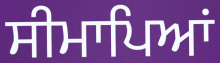
ਸੀਮਾਪਿਆਂ